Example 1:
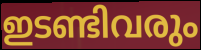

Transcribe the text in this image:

ഇടണ്ടിവരും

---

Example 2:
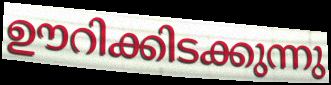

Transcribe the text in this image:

ഊറിക്കിടക്കുന്നു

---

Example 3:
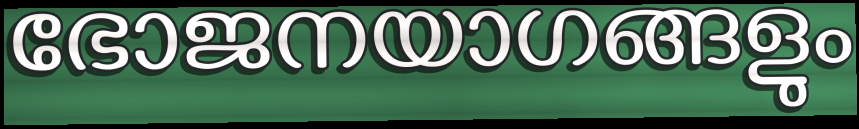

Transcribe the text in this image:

ഭോജനയാഗങ്ങളും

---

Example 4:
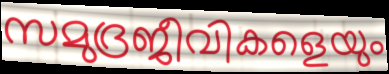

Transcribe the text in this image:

സമുദ്രജീവികളെയും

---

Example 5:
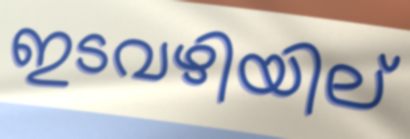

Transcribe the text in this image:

ഇടവഴിയില്